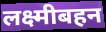
लक्ष्मीबहन